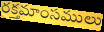
రక్తమాంసములు